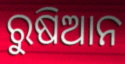
ରୁଷିଆନ